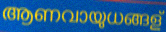
ആണവായുധങ്ങള്